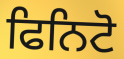
ਫਿਨਿਟੋ